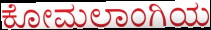
ಕೋಮಲಾಂಗಿಯ